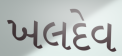
ખલદેવ